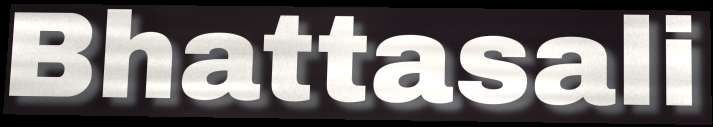
Bhattasali